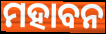
ମହାବନ